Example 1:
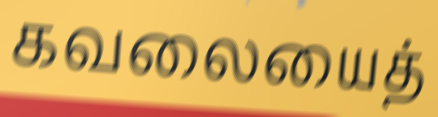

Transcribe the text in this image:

கவலையைத்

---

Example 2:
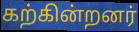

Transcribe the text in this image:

கற்கின்றனர்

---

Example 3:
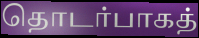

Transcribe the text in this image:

தொடர்பாகத்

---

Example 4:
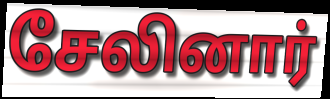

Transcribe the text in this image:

சேலினார்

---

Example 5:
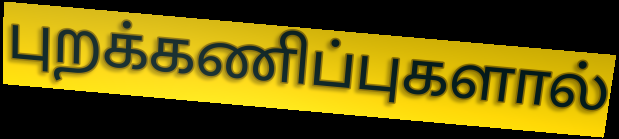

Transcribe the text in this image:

புறக்கணிப்புகளால்